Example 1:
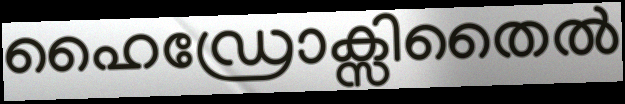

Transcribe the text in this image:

ഹൈഡ്രോക്സിതൈൽ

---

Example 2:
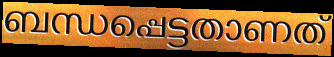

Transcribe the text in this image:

ബന്ധപ്പെട്ടതാണത്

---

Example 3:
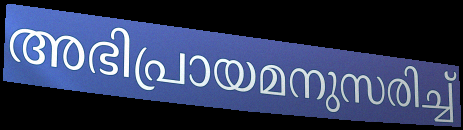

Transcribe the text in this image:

അഭിപ്രായമനുസരിച്ച്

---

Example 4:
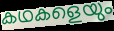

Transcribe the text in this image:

കഥകളെയും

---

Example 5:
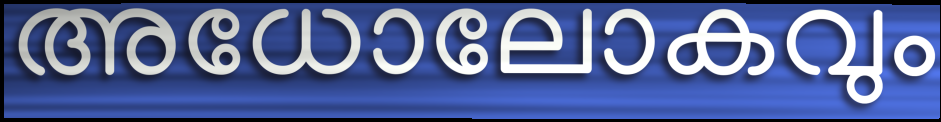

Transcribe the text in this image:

അധോലോകവും